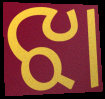
ଝା